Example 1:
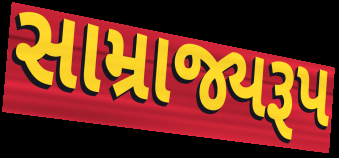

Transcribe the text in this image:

સામ્રાજ્યરૂપ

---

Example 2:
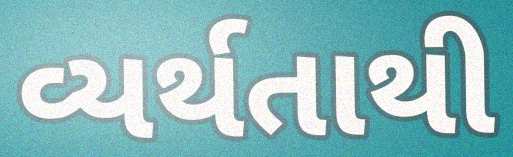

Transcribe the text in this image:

વ્યર્થતાથી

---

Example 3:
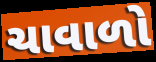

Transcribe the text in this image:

ચાવાળો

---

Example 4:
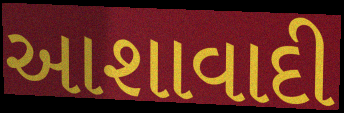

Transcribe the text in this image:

આશાવાદી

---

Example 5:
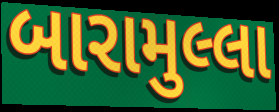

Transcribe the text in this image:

બારામુલ્લા